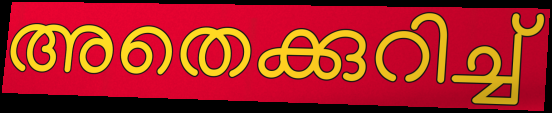
അതെക്കുറിച്ച്